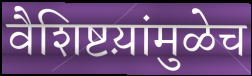
वैशिष्टय़ांमुळेच